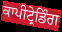
ਕਾਪੀਟ੍ਰੇਡਿੰਗ